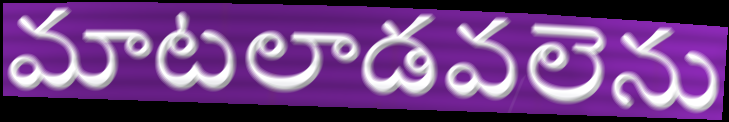
మాటలాడవలెను